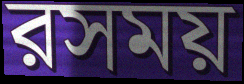
রসময়